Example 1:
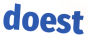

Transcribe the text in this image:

doest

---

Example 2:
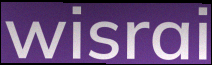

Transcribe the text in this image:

wisrai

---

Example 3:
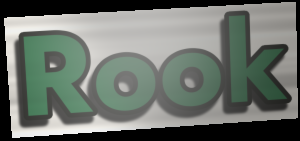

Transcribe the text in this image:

Rook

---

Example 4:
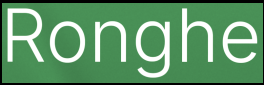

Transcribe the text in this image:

Ronghe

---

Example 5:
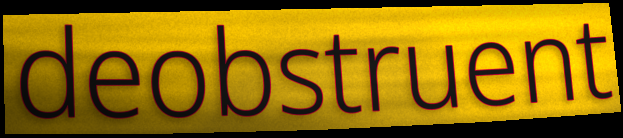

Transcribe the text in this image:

deobstruent